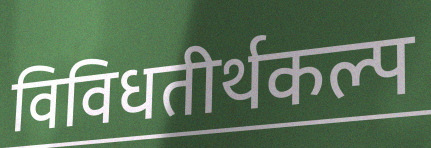
विविधतीर्थकल्प